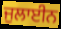
ਜੁਲਾਈਨ